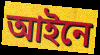
আইনে